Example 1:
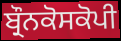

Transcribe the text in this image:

ਬ੍ਰੌਨਕੋਸਕੋਪੀ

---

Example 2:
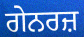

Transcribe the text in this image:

ਗੇਨਰਜ਼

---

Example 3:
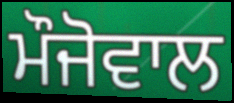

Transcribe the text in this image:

ਮੌਜੋਵਾਲ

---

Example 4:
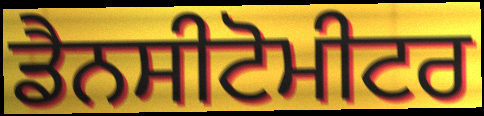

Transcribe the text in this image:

ਡੈਨਸੀਟੋਮੀਟਰ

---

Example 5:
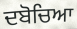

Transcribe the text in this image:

ਦਬੋਚਿਆ